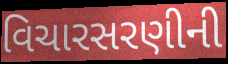
વિચારસરણીની